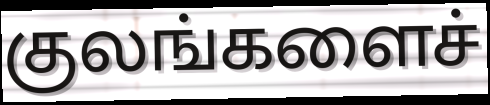
குலங்களைச்